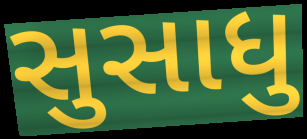
સુસાધુ